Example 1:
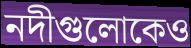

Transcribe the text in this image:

নদীগুলোকেও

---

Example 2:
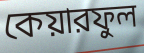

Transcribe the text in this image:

কেয়ারফুল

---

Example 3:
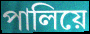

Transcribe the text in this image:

পালিয়ে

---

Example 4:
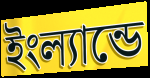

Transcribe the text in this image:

ইংল্যান্ডে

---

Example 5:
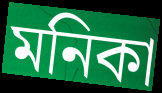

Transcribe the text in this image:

মনিকা